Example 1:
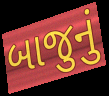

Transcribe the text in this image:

બાજુનું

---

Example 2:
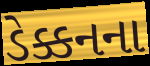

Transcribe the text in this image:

ડેક્કનના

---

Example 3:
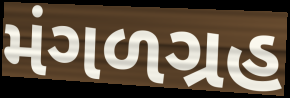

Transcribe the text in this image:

મંગળગ્રહ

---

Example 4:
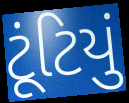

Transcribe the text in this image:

ટૂંટિયું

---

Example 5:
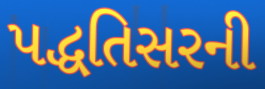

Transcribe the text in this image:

પદ્ધતિસરની